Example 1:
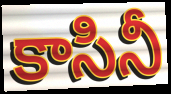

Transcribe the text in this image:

కాసినీ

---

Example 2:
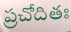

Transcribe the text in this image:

ప్రచోదితః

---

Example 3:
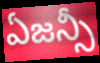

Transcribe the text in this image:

ఏజన్సీ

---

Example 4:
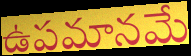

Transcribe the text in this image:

ఉపమానమే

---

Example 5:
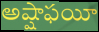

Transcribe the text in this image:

అష్షాఫయీ